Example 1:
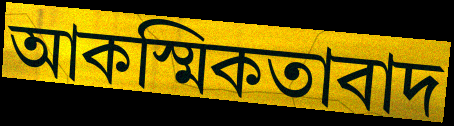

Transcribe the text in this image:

আকস্মিকতাবাদ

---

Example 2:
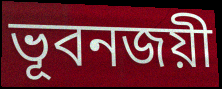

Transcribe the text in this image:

ভূবনজয়ী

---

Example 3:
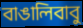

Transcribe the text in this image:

বাঙালিবাবু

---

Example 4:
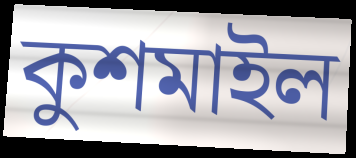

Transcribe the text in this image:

কুশমাইল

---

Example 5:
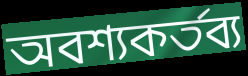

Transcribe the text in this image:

অবশ্যকর্তব্য